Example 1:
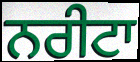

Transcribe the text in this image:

ਨਰੀਟਾ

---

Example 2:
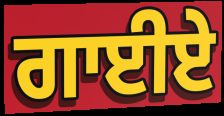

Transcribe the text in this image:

ਗਾਈਏ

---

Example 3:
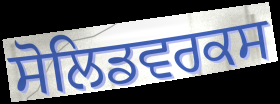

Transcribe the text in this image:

ਸੋਲਿਡਵਰਕਸ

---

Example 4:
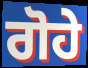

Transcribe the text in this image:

ਗੋਹੇ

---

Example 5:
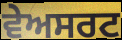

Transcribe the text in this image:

ਵੇਅਸਰਟ